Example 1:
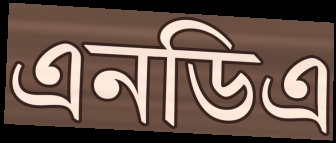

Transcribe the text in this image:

এনডিএ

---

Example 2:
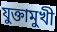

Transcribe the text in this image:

যুক্তামুখী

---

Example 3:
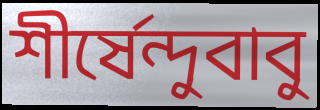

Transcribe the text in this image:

শীর্ষেন্দুবাবু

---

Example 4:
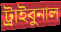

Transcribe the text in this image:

ট্রাইবুনাল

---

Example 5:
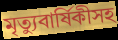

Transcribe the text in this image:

মৃত্যুবার্ষিকীসহ